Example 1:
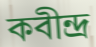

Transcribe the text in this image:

কবীন্দ্র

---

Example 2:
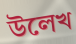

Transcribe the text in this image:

উলেখ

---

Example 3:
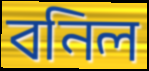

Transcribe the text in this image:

বনিল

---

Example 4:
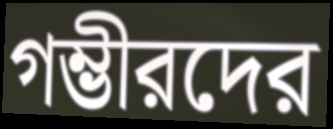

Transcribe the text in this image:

গম্ভীরদের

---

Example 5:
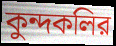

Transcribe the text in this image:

কুন্দকলির